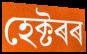
হেক্টৰৰ